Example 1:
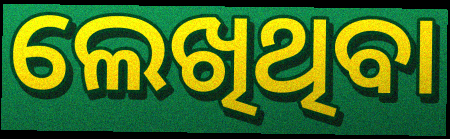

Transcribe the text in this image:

ଲେଖିଥିବା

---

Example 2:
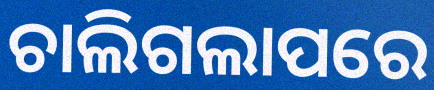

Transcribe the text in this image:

ଚାଲିଗଲାପରେ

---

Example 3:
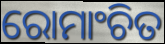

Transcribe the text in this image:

ରୋମାଂଚିତ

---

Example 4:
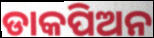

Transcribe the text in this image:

ଡାକପିଅନ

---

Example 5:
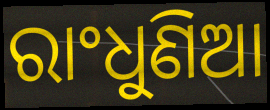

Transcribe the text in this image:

ରାଂଧୁଣିଆ